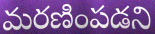
మరణింపడని